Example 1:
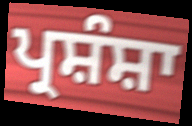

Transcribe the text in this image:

ਪ੍ਰਸ਼ੰਸ਼ਾ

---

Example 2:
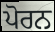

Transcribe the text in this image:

ਪੋਰਨ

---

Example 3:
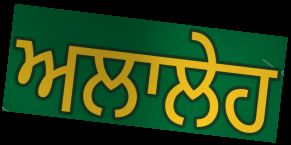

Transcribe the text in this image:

ਅਲਾਲੇਹ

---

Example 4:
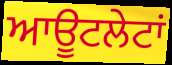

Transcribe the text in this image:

ਆਊਟਲੇਟਾਂ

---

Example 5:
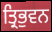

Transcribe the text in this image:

ਤ੍ਰਿਭੁਵਨ